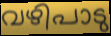
വഴിപാടു